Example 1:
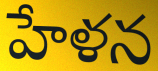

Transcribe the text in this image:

హేళన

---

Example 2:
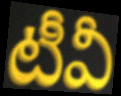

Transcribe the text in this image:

టీవీ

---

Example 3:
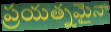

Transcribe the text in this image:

ప్రయత్నమైనా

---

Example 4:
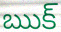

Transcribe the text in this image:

ఋక్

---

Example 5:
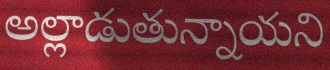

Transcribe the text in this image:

అల్లాడుతున్నాయని